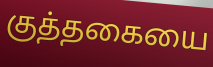
குத்தகையை